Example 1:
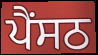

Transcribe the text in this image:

ਪੈਂਸਠ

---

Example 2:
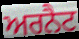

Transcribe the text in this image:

ਅਰਨੈਟ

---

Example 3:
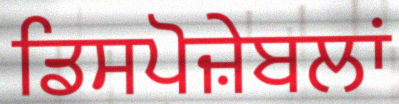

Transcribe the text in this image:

ਡਿਸਪੋਜ਼ੇਬਲਾਂ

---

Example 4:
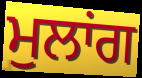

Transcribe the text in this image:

ਮੁਲਾਂਗ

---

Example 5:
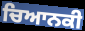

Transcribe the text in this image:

ਚਿਆਨਕੀ